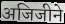
अजिजीने